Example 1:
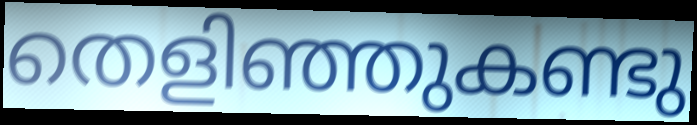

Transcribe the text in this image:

തെളിഞ്ഞുകണ്ടു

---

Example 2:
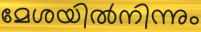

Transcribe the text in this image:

മേശയിൽനിന്നും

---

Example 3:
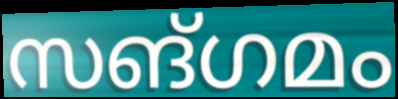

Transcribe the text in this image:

സങ്ഗമം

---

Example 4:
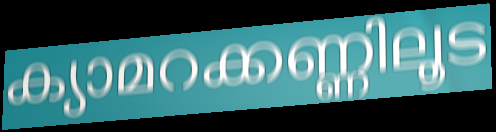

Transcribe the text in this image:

ക്യാമറക്കണ്ണിലൂട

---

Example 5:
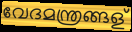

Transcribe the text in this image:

വേദമന്ത്രങ്ങള്